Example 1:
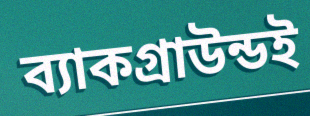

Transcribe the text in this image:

ব্যাকগ্রাউন্ডই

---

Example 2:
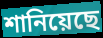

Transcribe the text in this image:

শানিয়েছে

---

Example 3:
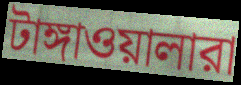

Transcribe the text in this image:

টাঙ্গাওয়ালারা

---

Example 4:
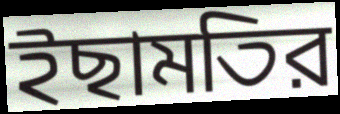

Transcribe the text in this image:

ইছামতির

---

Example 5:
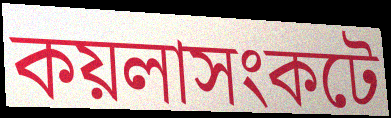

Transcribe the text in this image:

কয়লাসংকটে